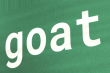
goat